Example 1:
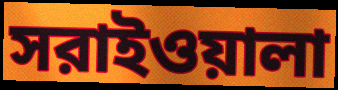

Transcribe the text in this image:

সরাইওয়ালা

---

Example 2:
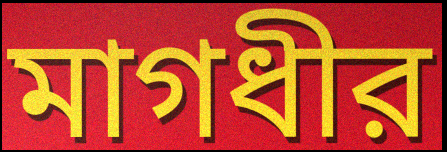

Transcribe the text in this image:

মাগধীর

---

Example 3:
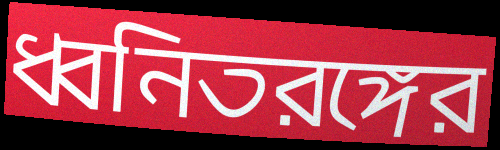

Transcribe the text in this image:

ধ্বনিতরঙ্গের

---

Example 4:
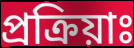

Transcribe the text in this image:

প্রক্রিয়াঃ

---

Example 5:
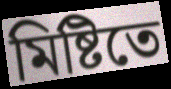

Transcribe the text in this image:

মিষ্টিতে